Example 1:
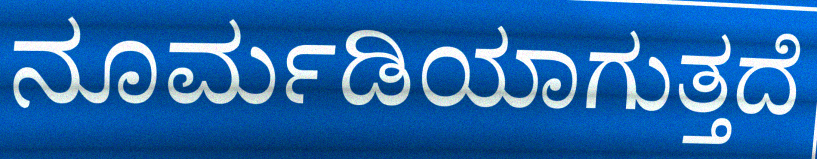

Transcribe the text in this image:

ನೂರ್ಮಡಿಯಾಗುತ್ತದೆ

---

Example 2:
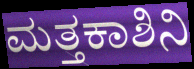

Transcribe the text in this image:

ಮತ್ತಕಾಶಿನಿ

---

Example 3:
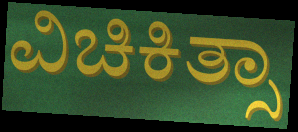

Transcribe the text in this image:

ವಿಚಿಕಿತ್ಸಾ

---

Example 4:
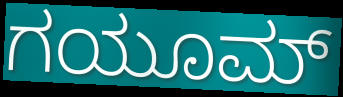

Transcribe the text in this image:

ಗಯೂಮ್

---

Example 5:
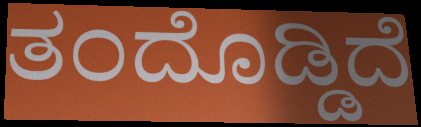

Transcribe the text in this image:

ತಂದೊಡ್ಡಿದೆ